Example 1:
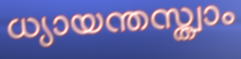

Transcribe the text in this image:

ധ്യായന്തസ്ത്വാം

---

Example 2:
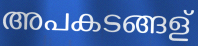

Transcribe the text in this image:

അപകടങ്ങള്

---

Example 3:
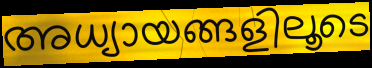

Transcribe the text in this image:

അധ്യായങ്ങളിലൂടെ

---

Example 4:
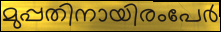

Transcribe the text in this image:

മുപ്പതിനായിരംപേർ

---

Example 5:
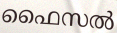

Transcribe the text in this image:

ഫൈസൽ